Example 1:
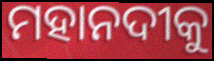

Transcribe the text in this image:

ମହାନଦୀକୁ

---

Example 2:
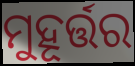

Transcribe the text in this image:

ମୁହୂର୍ତ୍ତର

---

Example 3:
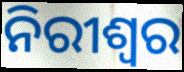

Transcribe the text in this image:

ନିରୀଶ୍ୱର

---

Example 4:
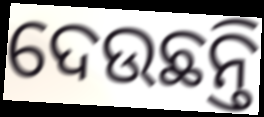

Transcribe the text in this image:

ଦେଉଛନ୍ତି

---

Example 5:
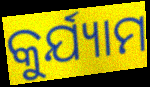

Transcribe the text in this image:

କୁର୍ଯ୍ୟାମ